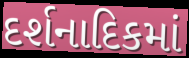
દર્શનાદિકમાં